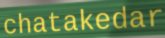
chatakedar